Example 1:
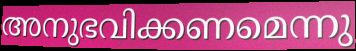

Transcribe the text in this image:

അനുഭവിക്കണമെന്നു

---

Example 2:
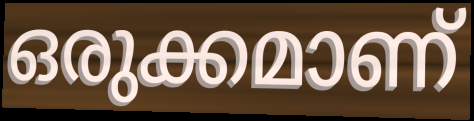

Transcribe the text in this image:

ഒരുക്കമാണ്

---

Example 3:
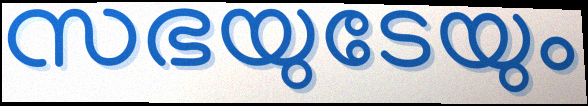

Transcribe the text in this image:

സഭയുടേയും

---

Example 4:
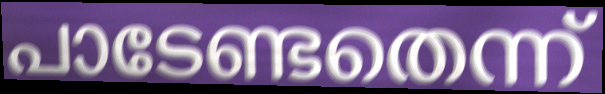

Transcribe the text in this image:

പാടേണ്ടതെന്ന്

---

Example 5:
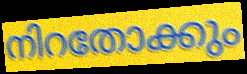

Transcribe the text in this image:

നിറതോക്കും